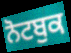
ਨੋਟਬੁਕ